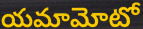
యమామోటో